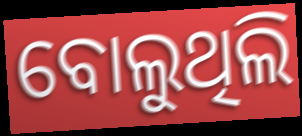
ବୋଲୁଥିଲି